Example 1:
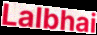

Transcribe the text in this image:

Lalbhai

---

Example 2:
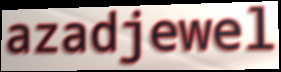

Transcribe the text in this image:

azadjewel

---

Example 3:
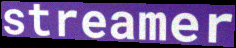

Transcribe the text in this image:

streamer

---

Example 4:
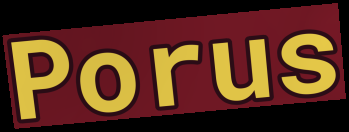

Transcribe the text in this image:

Porus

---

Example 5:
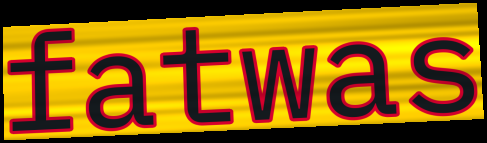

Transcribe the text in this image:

fatwas